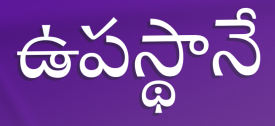
ఉపస్థానే